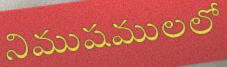
నిముషములలో